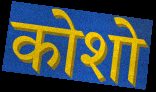
कोशो